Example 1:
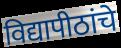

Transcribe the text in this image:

विद्यापीठांचे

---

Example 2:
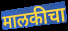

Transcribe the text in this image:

मालकीचा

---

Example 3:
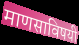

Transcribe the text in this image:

माणसाविषयी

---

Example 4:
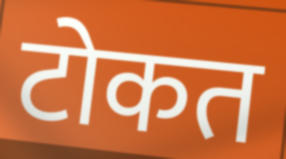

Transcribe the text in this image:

टोकत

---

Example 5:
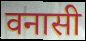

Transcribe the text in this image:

वनासी